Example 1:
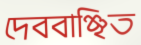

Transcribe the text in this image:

দেববাঞ্ছিত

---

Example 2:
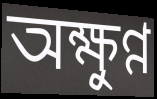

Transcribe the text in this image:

অক্ষুণ্ন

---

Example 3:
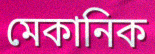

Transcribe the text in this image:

মেকানিক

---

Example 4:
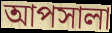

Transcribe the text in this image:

আপসালা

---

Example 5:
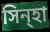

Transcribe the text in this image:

সিন্হা